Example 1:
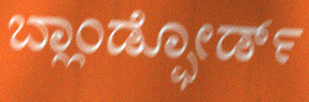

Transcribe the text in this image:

ಬ್ಲಾಂಡ್ಫೋರ್ಡ್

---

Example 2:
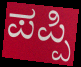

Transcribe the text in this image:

ಪಪ್ಪಿ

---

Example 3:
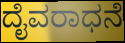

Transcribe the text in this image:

ದೈವರಾಧನೆ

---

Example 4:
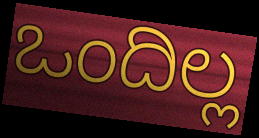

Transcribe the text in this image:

ಒಂದಿಲ್ಲ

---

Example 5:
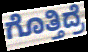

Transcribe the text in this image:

ಗೊತ್ತಿದ್ರೆ